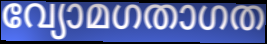
വ്യോമഗതാഗത